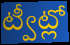
ట్వీట్లో